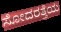
ಸೋದರತ್ತೆಯ